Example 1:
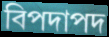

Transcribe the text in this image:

বিপদাপদ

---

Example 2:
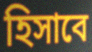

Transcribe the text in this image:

হিসাবে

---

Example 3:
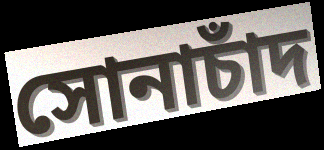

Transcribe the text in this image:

সোনাচাঁদ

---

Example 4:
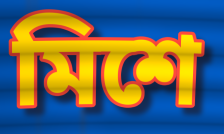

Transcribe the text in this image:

মিশে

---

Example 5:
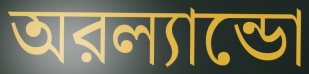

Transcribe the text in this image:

অরল্যান্ডো